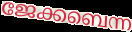
ജേക്കബെന്ന